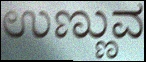
ಉಣ್ಣುವ